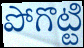
పోగొట్టి